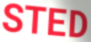
STED